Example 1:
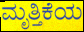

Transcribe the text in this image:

ಮೃತ್ತಿಕೆಯ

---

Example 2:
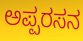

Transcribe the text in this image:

ಅಪ್ಪರಸನ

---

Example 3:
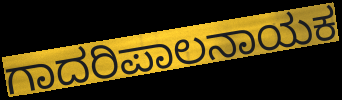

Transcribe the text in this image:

ಗಾದರಿಪಾಲನಾಯಕ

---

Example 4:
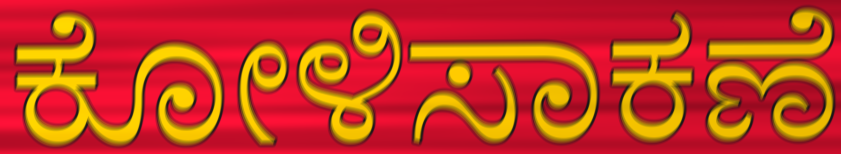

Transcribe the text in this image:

ಕೋಳಿಸಾಕಣೆ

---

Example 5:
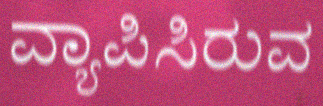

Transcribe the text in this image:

ವ್ಯಾಪಿಸಿರುವ